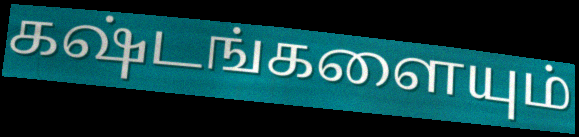
கஷ்டங்களையும்